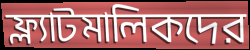
ফ্ল্যাটমালিকদের